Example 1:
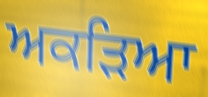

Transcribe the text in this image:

ਅਕੜਿਆ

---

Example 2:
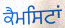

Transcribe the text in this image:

ਕੈਮਸਿਟਾਂ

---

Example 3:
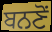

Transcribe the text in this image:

ਬਨਣੋਂ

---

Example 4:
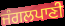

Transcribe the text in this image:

ਜੰਗਲਪਾਣੀ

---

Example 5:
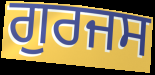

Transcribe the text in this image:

ਗੁਰਜਸ